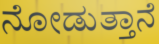
ನೋಡುತ್ತಾನೆ